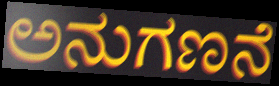
ಅನುಗಣನೆ